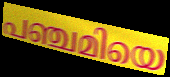
പഞ്ചമിയെ